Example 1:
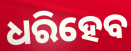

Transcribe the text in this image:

ଧରିହେବ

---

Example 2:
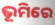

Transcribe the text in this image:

ଭୂମିରେ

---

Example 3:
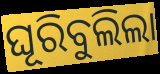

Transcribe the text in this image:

ଘୂରିବୁଲିଲା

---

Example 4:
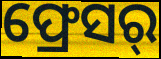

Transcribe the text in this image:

ଫ୍ରେସର୍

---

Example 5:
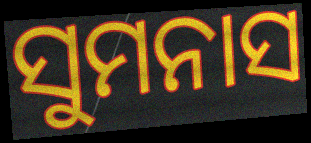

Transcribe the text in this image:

ସୁମନାସ